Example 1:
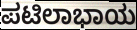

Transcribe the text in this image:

ಪಟಿಲಾಭಾಯ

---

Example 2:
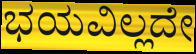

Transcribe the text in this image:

ಭಯವಿಲ್ಲದೇ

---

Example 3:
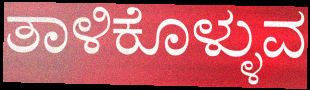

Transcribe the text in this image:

ತಾಳಿಕೊಳ್ಳುವ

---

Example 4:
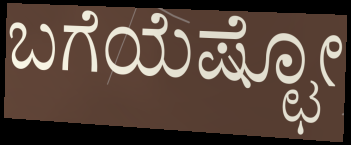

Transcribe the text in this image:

ಬಗೆಯೆಷ್ಟೋ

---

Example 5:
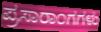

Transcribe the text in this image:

ಪ್ರಸಾರಾಂಗಗಳು